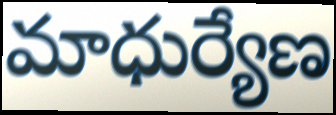
మాధుర్యేణ